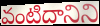
వంటిదానిని